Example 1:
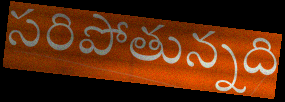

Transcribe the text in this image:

సరిపోతున్నది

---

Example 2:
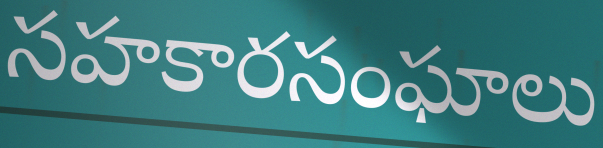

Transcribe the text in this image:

సహకారసంఘాలు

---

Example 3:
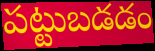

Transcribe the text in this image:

పట్టుబడడం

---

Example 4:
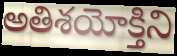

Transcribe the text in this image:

అతిశయోక్తిని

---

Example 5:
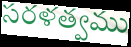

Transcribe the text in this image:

సరళత్వము